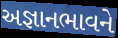
અજ્ઞાનભાવને